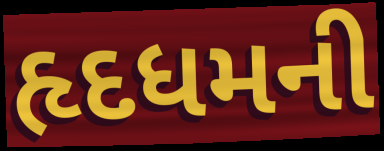
હૃદધમની